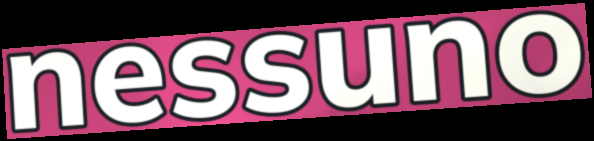
nessuno